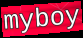
myboy